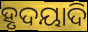
ହୃଦୟାଦି